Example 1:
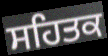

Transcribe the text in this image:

ਸਹਿਤਕ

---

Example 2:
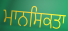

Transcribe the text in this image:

ਮਾਨਸਿਕਤਾ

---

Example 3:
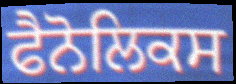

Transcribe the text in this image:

ਫੈਨੋਲਿਕਸ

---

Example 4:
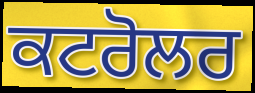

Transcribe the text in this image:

ਕਟਰੋਲਰ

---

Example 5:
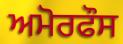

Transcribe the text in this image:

ਅਮੋਰਫੌਸ